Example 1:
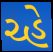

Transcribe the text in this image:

ચ્હે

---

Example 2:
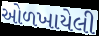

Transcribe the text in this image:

ઓળખાયેલી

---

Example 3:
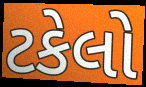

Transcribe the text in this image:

ટકેલો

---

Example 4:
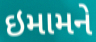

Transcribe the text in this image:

ઇમામને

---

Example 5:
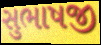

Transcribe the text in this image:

સુભાષજી